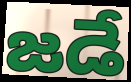
జడే